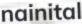
nainital